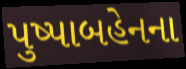
પુષ્પાબહેનના